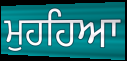
ਮੁਹਹਿਆ